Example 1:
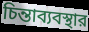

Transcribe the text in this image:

চিন্তাব্যবস্থার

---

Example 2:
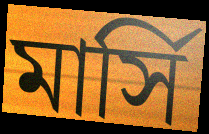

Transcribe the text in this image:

মার্সি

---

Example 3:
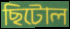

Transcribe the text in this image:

ছিটোল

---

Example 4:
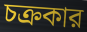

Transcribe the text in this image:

চক্রকার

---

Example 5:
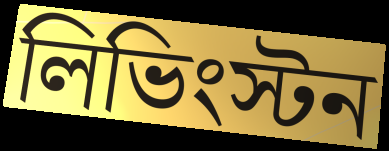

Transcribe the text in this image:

লিভিংস্টন